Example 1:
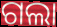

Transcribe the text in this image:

ଗଲା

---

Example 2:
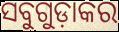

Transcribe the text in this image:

ସବୁଗୁଡ଼ାକର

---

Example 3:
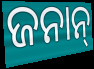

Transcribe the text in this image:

ଜନାନ୍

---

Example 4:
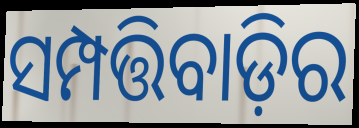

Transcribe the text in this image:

ସମ୍ପତ୍ତିବାଡ଼ିର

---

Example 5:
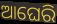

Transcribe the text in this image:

ଆଘେରି